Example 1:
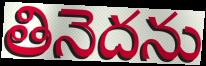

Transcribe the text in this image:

తినెదను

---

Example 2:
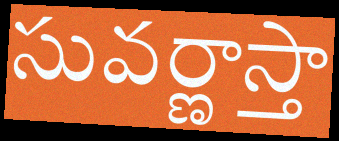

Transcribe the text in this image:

సువర్ణాస్తా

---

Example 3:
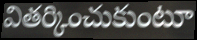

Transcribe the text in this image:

వితర్కించుకుంటూ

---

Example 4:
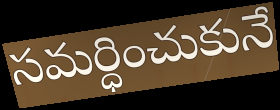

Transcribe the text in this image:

సమర్ధించుకునే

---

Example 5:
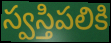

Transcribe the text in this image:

స్వస్తిపలికి